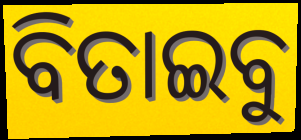
ବିତାଇବୁ